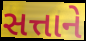
સત્તાને